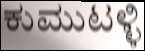
ಕುಮುಟಳ್ಳಿ